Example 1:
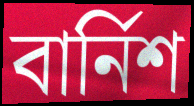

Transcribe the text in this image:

বার্নিশ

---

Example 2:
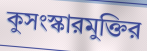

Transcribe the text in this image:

কুসংস্কারমুক্তির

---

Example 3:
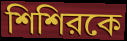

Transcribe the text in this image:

শিশিরকে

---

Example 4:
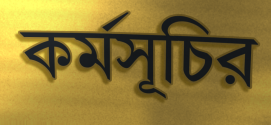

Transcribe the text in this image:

কর্মসূচির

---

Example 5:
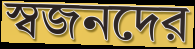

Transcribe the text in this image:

স্বজনদের